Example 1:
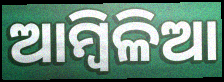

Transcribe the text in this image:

ଆମ୍ୱିଳିଆ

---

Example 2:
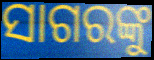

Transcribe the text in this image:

ସାଗରଙ୍କୁ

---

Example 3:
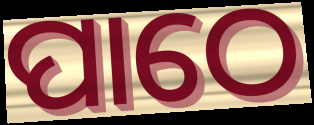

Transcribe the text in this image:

ପାଠେ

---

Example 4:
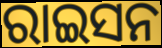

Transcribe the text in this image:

ରାଇସନ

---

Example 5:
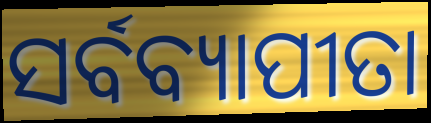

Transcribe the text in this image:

ସର୍ବବ୍ୟାପୀତା